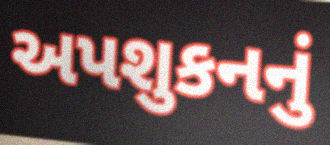
અપશુકનનું